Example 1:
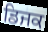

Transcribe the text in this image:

ਡਿਜਕ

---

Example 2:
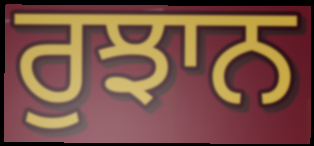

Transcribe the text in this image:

ਰੁਝਾਨ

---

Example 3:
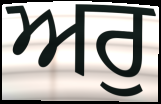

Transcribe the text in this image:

ਅਰੁ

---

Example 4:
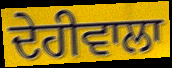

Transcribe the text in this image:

ਦੇਹੀਵਾਲਾ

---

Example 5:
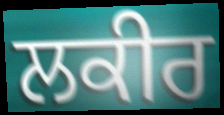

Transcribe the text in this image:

ਲਕੀਰ